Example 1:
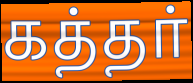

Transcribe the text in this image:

கத்தர்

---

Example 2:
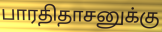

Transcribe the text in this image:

பாரதிதாசனுக்கு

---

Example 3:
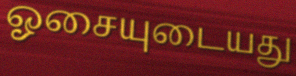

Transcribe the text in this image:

ஓசையுடையது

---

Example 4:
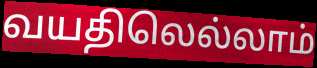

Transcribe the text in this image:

வயதிலெல்லாம்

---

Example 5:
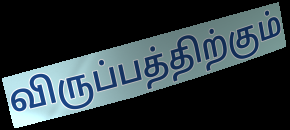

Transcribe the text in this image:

விருப்பத்திற்கும்